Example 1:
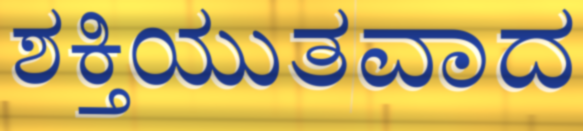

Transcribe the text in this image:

ಶಕ್ತಿಯುತವಾದ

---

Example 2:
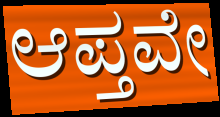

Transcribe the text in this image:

ಆಪ್ತವೇ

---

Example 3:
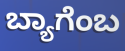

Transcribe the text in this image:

ಬ್ಯಾಗೆಂಬ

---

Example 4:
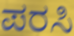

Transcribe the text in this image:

ಪರಸಿ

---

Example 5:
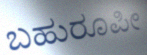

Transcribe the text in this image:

ಬಹುರೂಪೀ